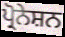
ਪ੍ਰੋਨੇਸ਼ਨ